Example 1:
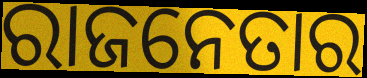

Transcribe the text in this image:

ରାଜନେତାର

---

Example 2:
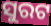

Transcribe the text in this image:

ସୁରଟ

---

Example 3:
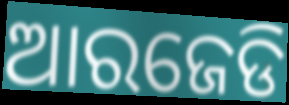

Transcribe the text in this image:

ଆରଜେଡି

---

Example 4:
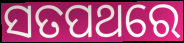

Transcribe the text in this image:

ସତପଥରେ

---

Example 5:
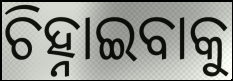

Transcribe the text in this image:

ଚିହ୍ନାଇବାକୁ